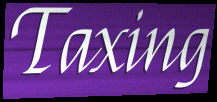
Taxing